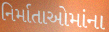
નિર્માતાઓમાંના